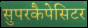
सुपरकैपेसिटर